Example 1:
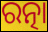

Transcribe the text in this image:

ରତ୍ନା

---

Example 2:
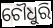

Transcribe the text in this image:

ଚୌଧୁରି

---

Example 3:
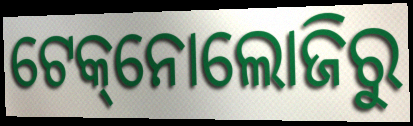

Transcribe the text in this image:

ଟେକ୍‌ନୋଲୋଜିରୁ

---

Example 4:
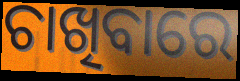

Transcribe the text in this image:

ଚାଖିବାରେ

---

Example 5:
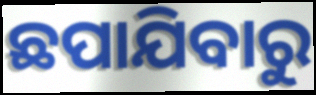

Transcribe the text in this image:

ଛପାଯିବାରୁ